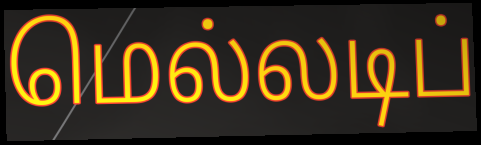
மெல்லடிப்